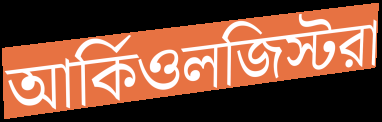
আর্কিওলজিস্টরা